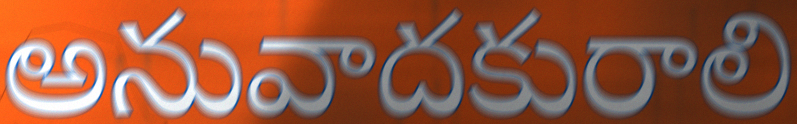
అనువాదకురాలి